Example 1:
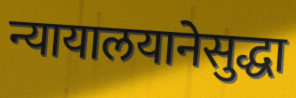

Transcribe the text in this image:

न्यायालयानेसुद्धा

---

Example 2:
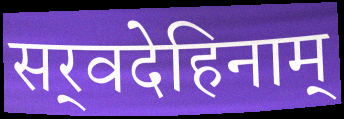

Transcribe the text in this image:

सर्वदेहिनाम्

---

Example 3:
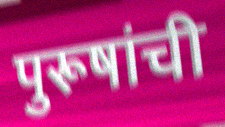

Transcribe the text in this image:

पुरूषांची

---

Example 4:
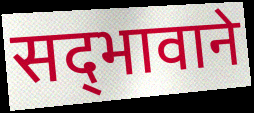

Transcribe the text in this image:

सद्‌भावाने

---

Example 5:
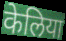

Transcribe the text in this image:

केलिया